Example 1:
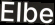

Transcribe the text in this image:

Elbe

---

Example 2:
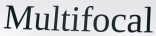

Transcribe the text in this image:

Multifocal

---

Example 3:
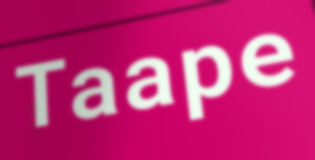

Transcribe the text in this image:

Taape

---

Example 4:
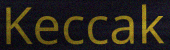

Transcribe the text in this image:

Keccak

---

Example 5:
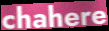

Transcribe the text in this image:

chahere